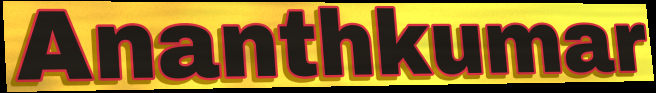
Ananthkumar